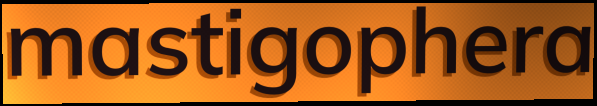
mastigophera